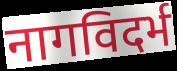
नागविदर्भ